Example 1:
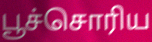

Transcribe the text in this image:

பூச்சொரிய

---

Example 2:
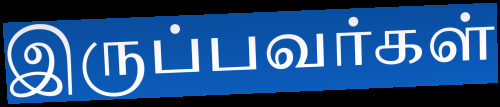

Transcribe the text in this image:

இருப்பவர்கள்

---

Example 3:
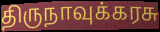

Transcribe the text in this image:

திருநாவுக்கரசு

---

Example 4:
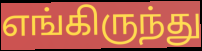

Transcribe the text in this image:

எங்கிருந்து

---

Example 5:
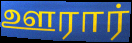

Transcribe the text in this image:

ஊரார்